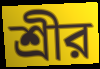
শ্রীর